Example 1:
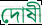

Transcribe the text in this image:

দোষী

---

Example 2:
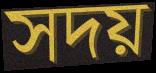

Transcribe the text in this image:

সদয়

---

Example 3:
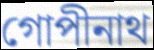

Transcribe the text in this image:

গোপীনাথ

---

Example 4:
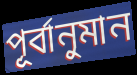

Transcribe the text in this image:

পূৰ্বানুমান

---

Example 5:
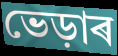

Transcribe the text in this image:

ভেড়াৰ